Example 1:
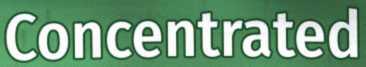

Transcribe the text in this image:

Concentrated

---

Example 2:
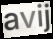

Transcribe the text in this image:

avij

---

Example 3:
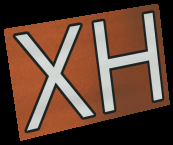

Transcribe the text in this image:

XH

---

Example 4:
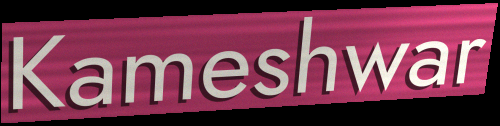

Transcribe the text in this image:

Kameshwar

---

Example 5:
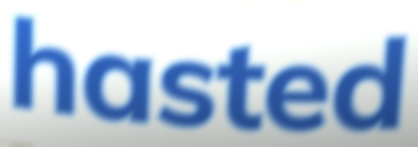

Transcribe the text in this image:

hasted